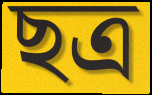
ছত্ৰ